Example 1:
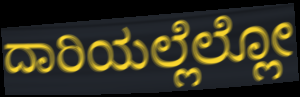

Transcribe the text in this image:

ದಾರಿಯಲ್ಲೆಲ್ಲೋ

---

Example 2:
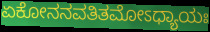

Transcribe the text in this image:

ಏಕೋನನವತಿತಮೋಽಧ್ಯಾಯಃ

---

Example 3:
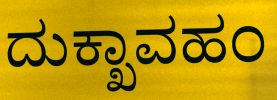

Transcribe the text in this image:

ದುಕ್ಖಾವಹಂ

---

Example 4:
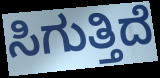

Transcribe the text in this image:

ಸಿಗುತ್ತಿದೆ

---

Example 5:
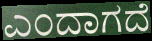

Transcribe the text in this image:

ಎಂದಾಗದೆ